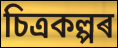
চিত্ৰকল্পৰ